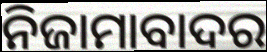
ନିଜାମାବାଦର